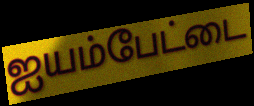
ஐயம்பேட்டை